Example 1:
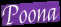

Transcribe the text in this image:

Poona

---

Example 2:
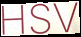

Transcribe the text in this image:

HSV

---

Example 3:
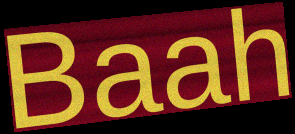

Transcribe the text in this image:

Baah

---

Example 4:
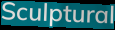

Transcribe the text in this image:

Sculptural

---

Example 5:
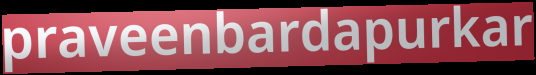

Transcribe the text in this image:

praveenbardapurkar